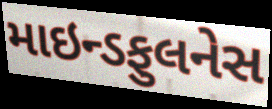
માઇન્ડફુલનેસ